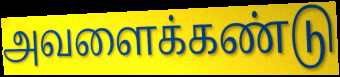
அவளைக்கண்டு